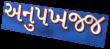
અનુપખજ્જ